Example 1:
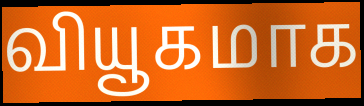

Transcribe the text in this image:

வியூகமாக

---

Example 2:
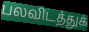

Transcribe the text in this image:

பலவிடத்துக்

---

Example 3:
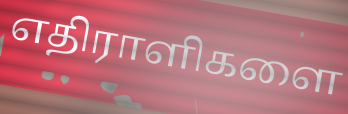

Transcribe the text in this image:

எதிராளிகளை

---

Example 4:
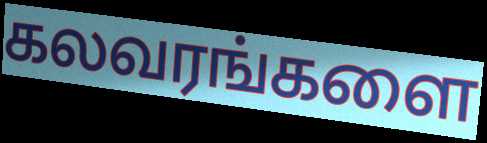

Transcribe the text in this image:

கலவரங்களை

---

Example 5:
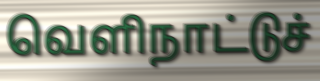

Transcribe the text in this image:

வெளிநாட்டுச்